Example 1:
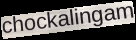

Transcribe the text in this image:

chockalingam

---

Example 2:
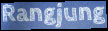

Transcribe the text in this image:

Rangjung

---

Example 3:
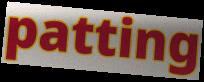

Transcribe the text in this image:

patting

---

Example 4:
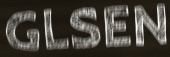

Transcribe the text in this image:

GLSEN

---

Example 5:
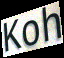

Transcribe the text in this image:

Koh